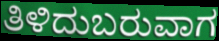
ತಿಳಿದುಬರುವಾಗ